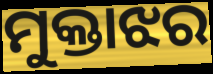
ମୁକ୍ତାଝର